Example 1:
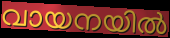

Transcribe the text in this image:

വായനയിൽ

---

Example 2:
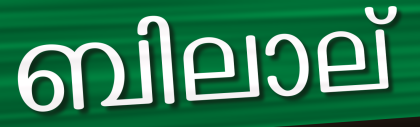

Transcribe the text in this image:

ബിലാല്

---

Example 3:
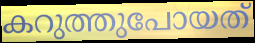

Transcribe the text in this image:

കറുത്തുപോയത്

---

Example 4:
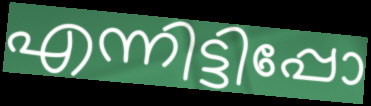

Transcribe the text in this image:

എന്നിട്ടിപ്പോ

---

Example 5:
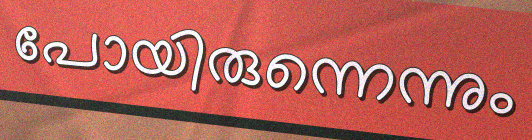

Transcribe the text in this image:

പോയിരുന്നെന്നും